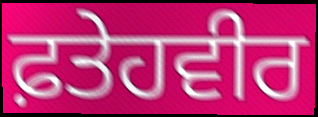
ਫ਼ਤੇਹਵੀਰ